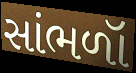
સાંભળૉ